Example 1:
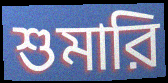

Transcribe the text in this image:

শুমারি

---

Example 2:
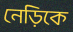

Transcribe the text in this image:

নেড়িকে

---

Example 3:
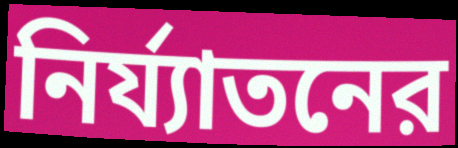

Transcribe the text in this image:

নির্য্যাতনের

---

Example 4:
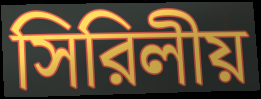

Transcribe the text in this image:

সিরিলীয়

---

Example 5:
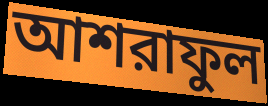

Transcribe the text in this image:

আশরাফুল